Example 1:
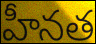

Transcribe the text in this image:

హీనత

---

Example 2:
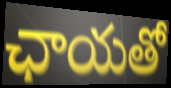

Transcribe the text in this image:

ఛాయతో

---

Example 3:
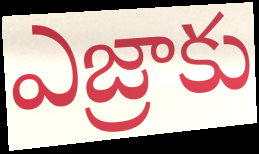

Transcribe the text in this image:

ఎజ్రాకు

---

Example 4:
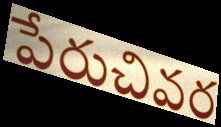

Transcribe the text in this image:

పేరుచివర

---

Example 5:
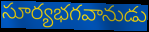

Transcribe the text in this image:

సూర్యభగవానుడు